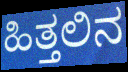
ಹಿತ್ತಲಿನ